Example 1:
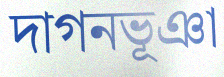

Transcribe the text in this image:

দাগনভূঞা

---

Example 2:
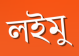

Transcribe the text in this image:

লইমু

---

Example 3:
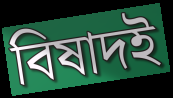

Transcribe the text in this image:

বিষাদই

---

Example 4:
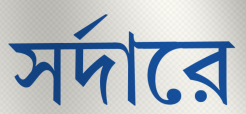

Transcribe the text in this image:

সর্দারে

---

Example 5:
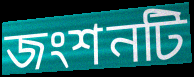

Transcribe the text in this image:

জংশনটি